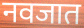
नवजात